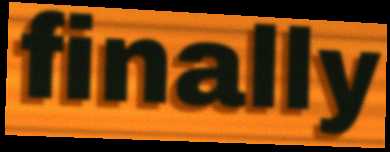
finally